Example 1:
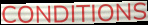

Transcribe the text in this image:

CONDITIONS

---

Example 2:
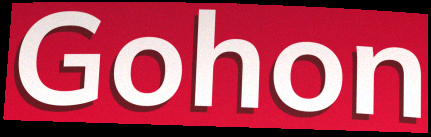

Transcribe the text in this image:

Gohon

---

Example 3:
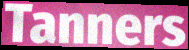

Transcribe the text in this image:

Tanners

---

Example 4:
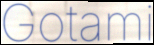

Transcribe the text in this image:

Gotami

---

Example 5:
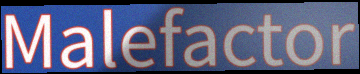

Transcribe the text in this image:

Malefactor